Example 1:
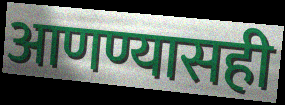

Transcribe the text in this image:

आणण्यासही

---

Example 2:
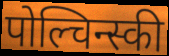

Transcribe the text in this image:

पोल्चिन्स्की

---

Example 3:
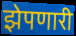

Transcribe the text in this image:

झेपणारी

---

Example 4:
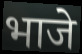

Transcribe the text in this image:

भाजे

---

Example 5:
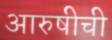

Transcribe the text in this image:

आरुषीची